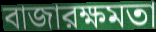
বাজারক্ষমতা